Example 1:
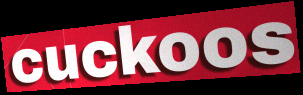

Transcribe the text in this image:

cuckoos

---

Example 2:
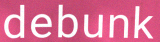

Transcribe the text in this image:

debunk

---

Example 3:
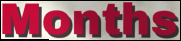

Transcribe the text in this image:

Months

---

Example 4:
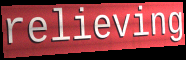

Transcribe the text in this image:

relieving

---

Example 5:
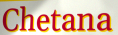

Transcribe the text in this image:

Chetana